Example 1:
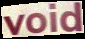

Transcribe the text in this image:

void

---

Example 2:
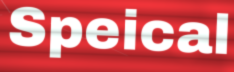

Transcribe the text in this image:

Speical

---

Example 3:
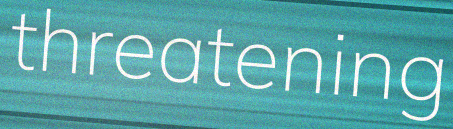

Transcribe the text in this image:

threatening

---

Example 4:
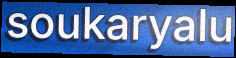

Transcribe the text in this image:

soukaryalu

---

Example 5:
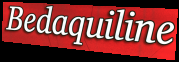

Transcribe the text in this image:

Bedaquiline